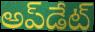
అప్‌డేట్